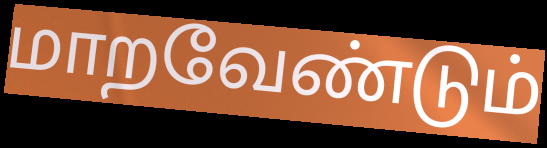
மாறவேண்டும்